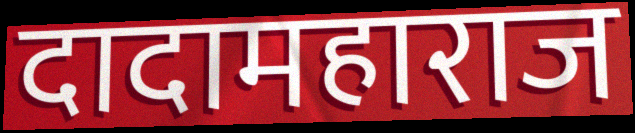
दादामहाराज